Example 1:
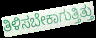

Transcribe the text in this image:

ತಿಳಿಸಬೇಕಾಗುತ್ತಿತ್ತು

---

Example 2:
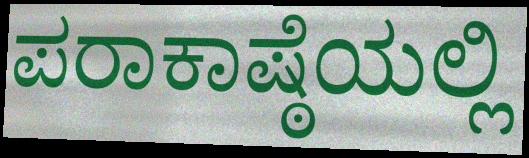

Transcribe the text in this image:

ಪರಾಕಾಷ್ಠೆಯಲ್ಲಿ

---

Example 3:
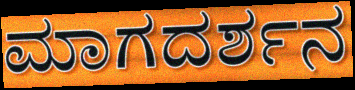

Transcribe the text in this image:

ಮಾಗದರ್ಶನ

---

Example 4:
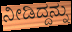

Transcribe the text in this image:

ನೀಡಿದ್ದನ್ನು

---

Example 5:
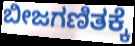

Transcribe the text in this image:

ಬೀಜಗಣಿತಕ್ಕೆ